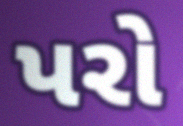
પરો